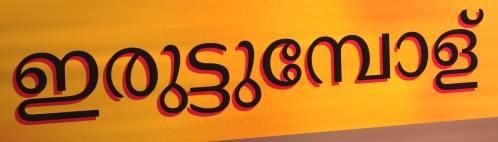
ഇരുട്ടുമ്പോള്